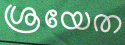
ശ്രയേത